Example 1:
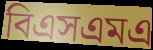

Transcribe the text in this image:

বিএসএমএ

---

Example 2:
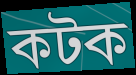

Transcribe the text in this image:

কটক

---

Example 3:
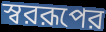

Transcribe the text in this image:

স্বররূপের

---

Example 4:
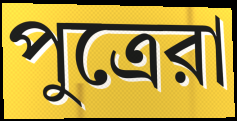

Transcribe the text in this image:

পুত্রেরা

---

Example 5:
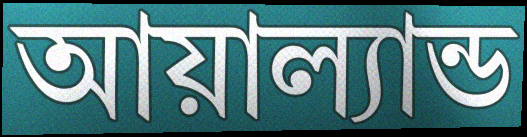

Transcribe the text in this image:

আয়াল্যান্ড